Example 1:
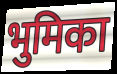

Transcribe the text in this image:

भुमिका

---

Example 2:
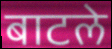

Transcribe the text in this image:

बाटले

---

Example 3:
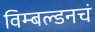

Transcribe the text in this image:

विम्बल्डनचं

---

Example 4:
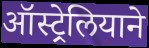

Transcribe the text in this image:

ऑस्ट्रेलियाने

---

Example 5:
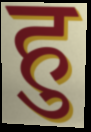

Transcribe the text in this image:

हु